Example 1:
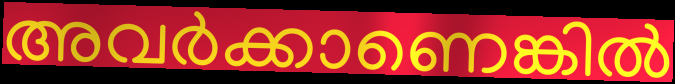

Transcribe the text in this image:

അവർക്കാണെങ്കിൽ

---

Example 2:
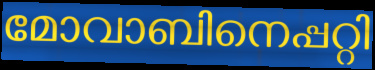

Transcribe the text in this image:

മോവാബിനെപ്പറ്റി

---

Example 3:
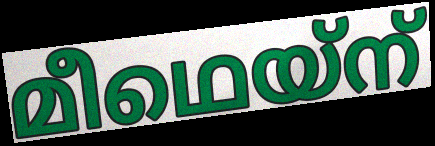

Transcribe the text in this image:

മീഥെയ്ന്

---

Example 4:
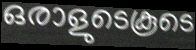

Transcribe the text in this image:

ഒരാളുടെകൂടെ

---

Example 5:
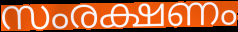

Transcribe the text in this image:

സംരക്ഷണം